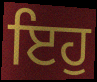
ਇਹੁ